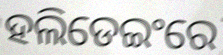
ହଲିଡେଇଂରେ